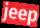
jeep